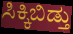
ಸಿಕ್ಕಿಬಿಡ್ತು